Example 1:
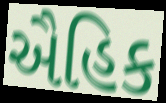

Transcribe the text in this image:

ઐહિક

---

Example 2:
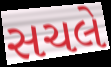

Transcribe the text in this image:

સચલે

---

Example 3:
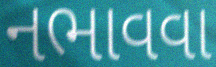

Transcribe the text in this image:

નભાવવા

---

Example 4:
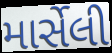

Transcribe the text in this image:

માર્સેલી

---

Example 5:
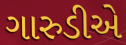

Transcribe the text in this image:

ગારુડીએ